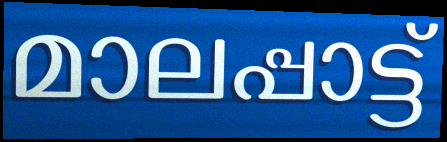
മാലപ്പാട്ട്